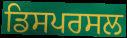
ਡਿਸਪਰਸਲ